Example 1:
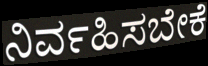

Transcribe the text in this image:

ನಿರ್ವಹಿಸಬೇಕೆ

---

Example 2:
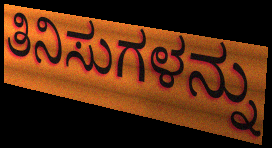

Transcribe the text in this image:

ತಿನಿಸುಗಳನ್ನು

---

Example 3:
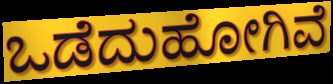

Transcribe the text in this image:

ಒಡೆದುಹೋಗಿವೆ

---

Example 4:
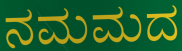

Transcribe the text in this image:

ನಮಮದ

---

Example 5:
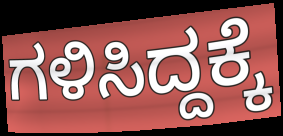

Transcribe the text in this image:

ಗಳಿಸಿದ್ದಕ್ಕೆ